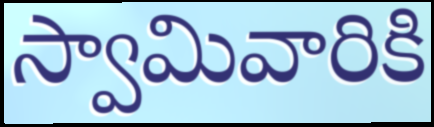
స్వామివారికి